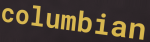
columbian